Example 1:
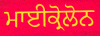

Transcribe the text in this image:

ਮਾਈਕ੍ਰੋਲੋਨ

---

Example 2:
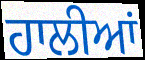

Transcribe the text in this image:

ਹਾਲੀਆਂ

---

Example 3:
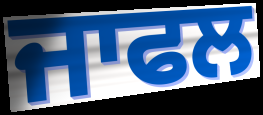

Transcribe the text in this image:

ਜਾਫਲ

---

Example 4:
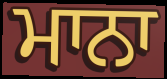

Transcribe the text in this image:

ਮਾਨਾ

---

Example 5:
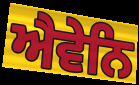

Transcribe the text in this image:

ਐਵੇਨਿ